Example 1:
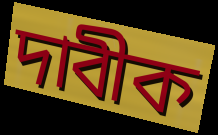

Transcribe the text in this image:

দাবীক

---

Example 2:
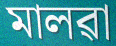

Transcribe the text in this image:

মালৱা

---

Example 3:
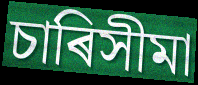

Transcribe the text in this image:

চাৰিসীমা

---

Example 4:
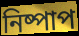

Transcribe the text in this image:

নিষ্পাপ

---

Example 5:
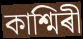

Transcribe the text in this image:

কাশ্মিৰী